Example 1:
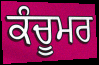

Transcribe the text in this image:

ਕੰਚੂਮਰ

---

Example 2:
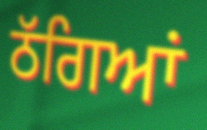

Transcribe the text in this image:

ਠੱਗਿਆਂ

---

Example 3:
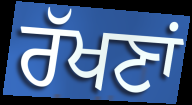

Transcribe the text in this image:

ਰੱਖਣਾਂ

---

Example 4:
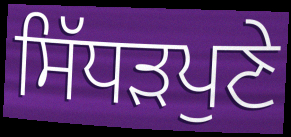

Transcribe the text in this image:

ਸਿੱਧੜਪੁਣੇ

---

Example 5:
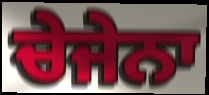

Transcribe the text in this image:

ਚੇਜੇਨਾ